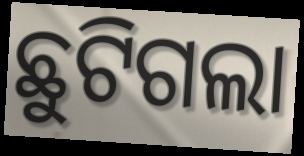
ଛୁଟିଗଲା